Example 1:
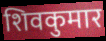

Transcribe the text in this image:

शिवकुमार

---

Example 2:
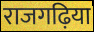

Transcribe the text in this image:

राजगढ़िया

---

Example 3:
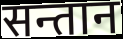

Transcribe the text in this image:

सन्तान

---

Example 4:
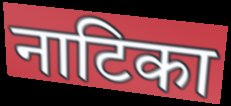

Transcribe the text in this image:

नाटिका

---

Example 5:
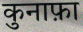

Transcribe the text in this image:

कुनाफ़ा